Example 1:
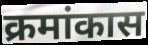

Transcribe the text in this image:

क्रमांकास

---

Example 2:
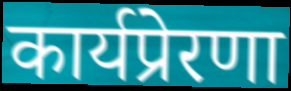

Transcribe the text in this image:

कार्यप्रेरणा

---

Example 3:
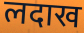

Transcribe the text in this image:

लदाख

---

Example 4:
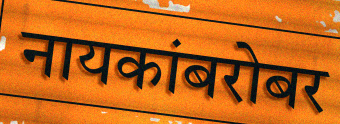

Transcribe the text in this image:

नायकांबरोबर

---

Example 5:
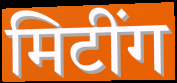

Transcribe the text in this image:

मिटींग